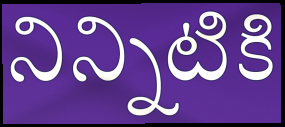
నిన్నిటికి